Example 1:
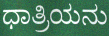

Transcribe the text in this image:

ಧಾತ್ರಿಯನು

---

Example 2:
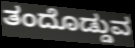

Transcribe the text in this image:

ತಂದೊಡ್ಡುವ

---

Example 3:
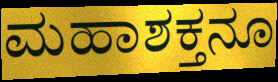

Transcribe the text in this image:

ಮಹಾಶಕ್ತನೂ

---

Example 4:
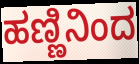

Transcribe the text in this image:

ಹಣ್ಣಿನಿಂದ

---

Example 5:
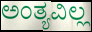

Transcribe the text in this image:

ಅಂತ್ಯವಿಲ್ಲ